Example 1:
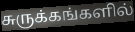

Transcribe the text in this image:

சுருக்கங்களில்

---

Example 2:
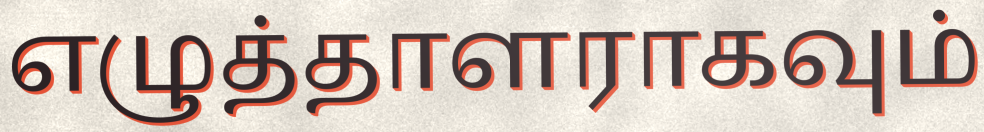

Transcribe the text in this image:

எழுத்தாளராகவும்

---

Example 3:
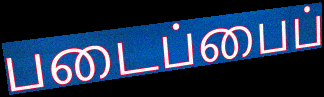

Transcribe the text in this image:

படைப்பைப்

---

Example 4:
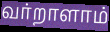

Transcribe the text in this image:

வர்றாளாம்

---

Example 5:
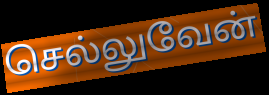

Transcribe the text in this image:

செல்லுவேன்